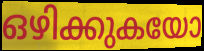
ഒഴിക്കുകയോ